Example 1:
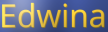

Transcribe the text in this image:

Edwina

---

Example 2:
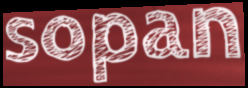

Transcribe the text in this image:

sopan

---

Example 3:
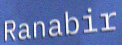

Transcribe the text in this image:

Ranabir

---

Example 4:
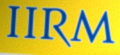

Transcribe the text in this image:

IIRM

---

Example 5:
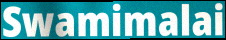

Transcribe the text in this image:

Swamimalai